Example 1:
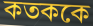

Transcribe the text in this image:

কতককে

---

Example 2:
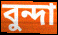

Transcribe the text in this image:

বুন্দা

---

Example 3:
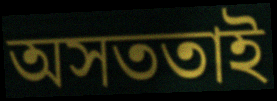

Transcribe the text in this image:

অসততাই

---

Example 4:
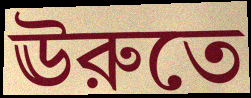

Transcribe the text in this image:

ঊরুতে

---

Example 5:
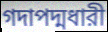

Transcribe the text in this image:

গদাপদ্মধারী